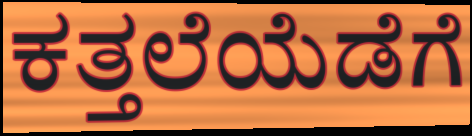
ಕತ್ತಲೆಯೆಡೆಗೆ